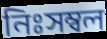
নিঃসম্বল